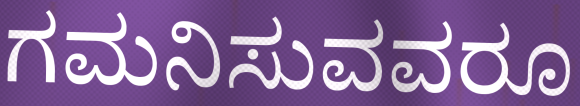
ಗಮನಿಸುವವರೂ